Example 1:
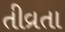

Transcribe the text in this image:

તીવ્રતા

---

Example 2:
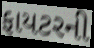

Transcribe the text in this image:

ફાયટરની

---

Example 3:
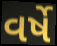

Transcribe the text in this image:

વર્ષે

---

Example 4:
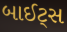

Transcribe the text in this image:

બાઈટ્સ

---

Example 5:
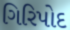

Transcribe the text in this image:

ગિરિપોદ